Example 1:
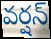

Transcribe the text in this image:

వర్షన్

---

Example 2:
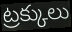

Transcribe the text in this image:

ట్రక్కులు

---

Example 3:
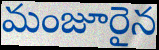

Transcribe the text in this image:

మంజూరైన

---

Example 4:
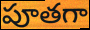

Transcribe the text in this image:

పూతగా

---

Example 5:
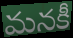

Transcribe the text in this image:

మనకీ